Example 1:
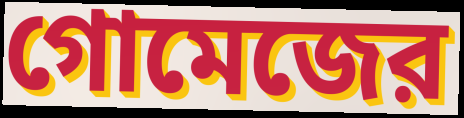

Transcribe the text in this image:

গোমেজের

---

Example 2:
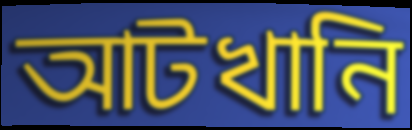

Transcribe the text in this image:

আটখানি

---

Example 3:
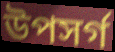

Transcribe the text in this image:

উপসর্গ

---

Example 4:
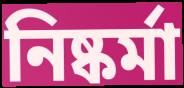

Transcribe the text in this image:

নিষ্কর্মা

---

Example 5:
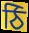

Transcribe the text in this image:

ঠি